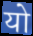
यो